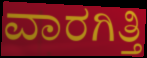
ವಾರಗಿತ್ತಿ